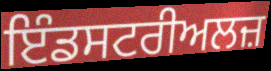
ਇੰਡਸਟਰੀਅਲਜ਼